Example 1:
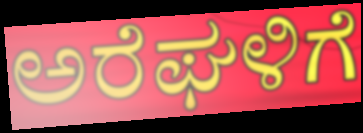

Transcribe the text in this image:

ಅರೆಘಳಿಗೆ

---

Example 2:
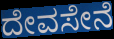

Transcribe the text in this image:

ದೇವಸೇನೆ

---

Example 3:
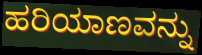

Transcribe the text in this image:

ಹರಿಯಾಣವನ್ನು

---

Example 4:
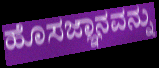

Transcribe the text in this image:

ಹೊಸಜ್ಞಾನವನ್ನು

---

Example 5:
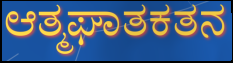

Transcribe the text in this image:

ಆತ್ಮಘಾತಕತನ